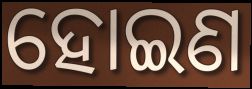
ହୋଇଣ